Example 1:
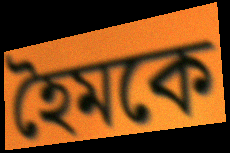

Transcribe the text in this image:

হৈমকে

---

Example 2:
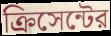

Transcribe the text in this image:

ক্রিসেন্টের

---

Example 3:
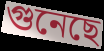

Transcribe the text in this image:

গুনেছে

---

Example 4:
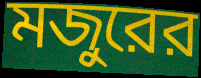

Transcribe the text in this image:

মজুরের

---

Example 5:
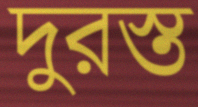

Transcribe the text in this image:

দুরস্ত